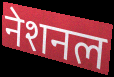
नेशनल